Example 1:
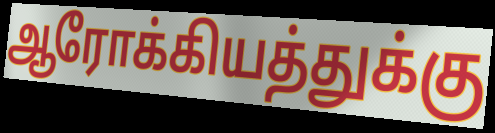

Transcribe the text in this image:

ஆரோக்கியத்துக்கு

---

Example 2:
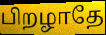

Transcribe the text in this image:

பிறழாதே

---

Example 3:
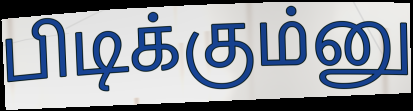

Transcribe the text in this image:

பிடிக்கும்னு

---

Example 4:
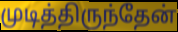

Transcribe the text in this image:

முடித்திருந்தேன்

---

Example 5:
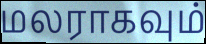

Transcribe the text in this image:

மலராகவும்